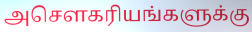
அசௌகரியங்களுக்கு